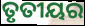
ତୃତୀୟର